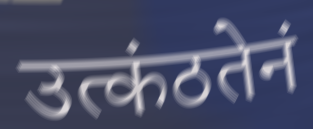
उत्कंठतेनं